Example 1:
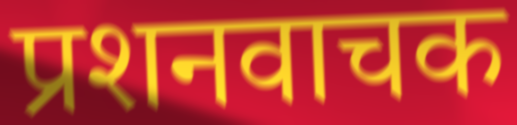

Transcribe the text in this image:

प्रशनवाचक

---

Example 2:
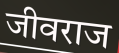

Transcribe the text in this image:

जीवराज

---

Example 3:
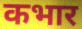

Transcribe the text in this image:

कभार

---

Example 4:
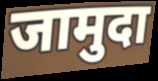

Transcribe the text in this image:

जामुदा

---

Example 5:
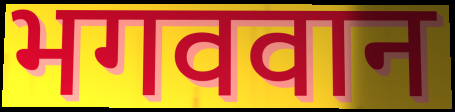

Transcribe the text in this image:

भगववान